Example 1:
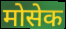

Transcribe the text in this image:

मोसेक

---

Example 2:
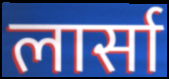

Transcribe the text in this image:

लार्सा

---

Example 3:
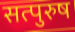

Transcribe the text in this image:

सत्पुरुष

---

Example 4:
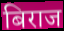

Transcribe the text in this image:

बिराज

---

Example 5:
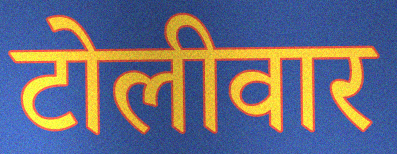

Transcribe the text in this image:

टोलीवार